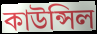
কাউন্সিল